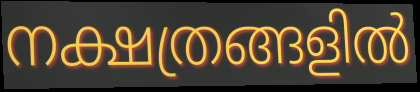
നക്ഷത്രങ്ങളിൽ